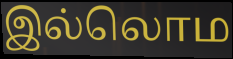
இல்லொம